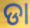
ଡା